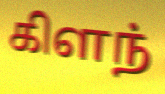
கிளந்